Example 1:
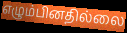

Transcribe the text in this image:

எழும்பினதில்லை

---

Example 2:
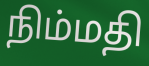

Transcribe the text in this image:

நிம்மதி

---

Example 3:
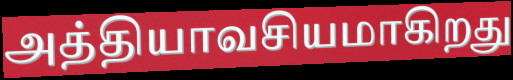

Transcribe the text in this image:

அத்தியாவசியமாகிறது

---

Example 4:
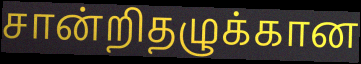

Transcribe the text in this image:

சான்றிதழுக்கான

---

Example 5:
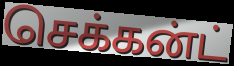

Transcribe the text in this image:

செக்கன்ட்